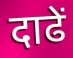
दाढें